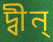
দ্বীন্